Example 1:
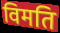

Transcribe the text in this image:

विमति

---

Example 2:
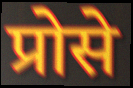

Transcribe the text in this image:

प्रोसे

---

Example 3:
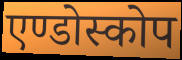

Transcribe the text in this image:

एण्डोस्कोप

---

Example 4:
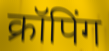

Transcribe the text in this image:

क्रॉपिंग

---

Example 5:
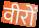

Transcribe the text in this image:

वीरों